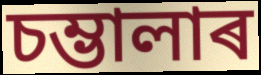
চম্ভালাৰ